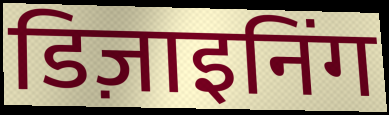
डिज़ाइनिंग